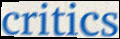
critics